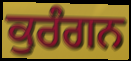
ਕੁਰੰਗਨ